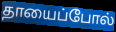
தாயைப்போல்